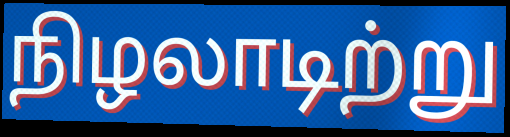
நிழலாடிற்று